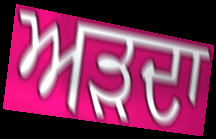
ਅੜਦਾ